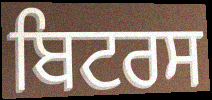
ਬਿਟਰਸ